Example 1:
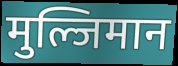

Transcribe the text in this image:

मुल्जिमान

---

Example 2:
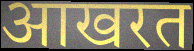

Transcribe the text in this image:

आखरत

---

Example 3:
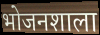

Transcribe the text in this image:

भोजनशाला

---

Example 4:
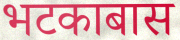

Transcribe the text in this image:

भटकाबास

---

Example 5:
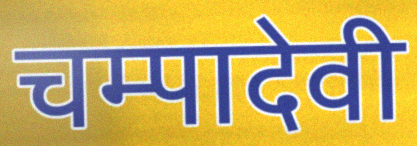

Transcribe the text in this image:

चम्पादेवी